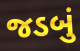
જડબું